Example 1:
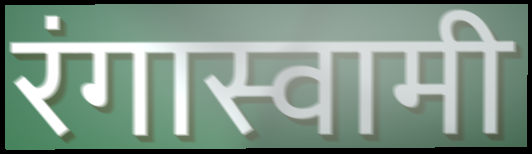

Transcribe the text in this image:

रंगास्वामी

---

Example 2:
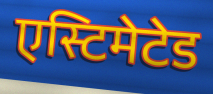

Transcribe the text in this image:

एस्टिमेटेड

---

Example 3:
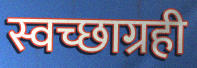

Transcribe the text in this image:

स्वच्छाग्रही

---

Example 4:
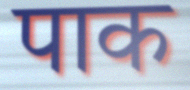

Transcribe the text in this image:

पाक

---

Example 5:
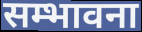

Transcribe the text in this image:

सम्भावना